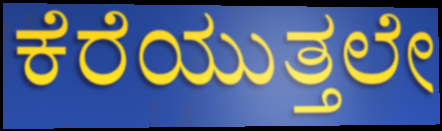
ಕೆರೆಯುತ್ತಲೇ